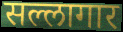
सल्लागार